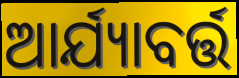
ଆର୍ଯ୍ୟାବର୍ତ୍ତ